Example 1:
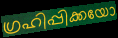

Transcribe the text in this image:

ഗ്രഹിപ്പിക്കയോ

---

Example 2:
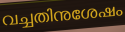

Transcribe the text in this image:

വച്ചതിനുശേഷം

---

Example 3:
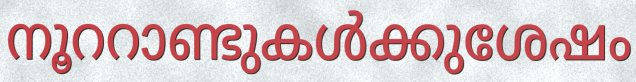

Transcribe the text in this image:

നൂററാണ്ടുകൾക്കുശേഷം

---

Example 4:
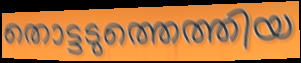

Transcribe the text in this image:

തൊട്ടടുത്തെത്തിയ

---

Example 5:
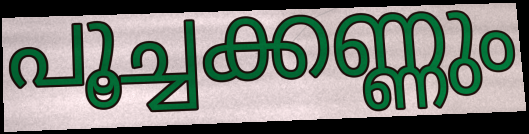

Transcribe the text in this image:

പൂച്ചക്കണ്ണും